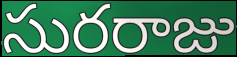
సురరాజు